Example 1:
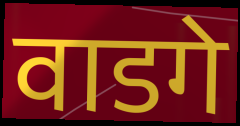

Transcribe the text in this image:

वाडगे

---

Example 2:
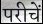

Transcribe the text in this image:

परीचें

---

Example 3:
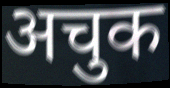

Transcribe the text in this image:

अचुक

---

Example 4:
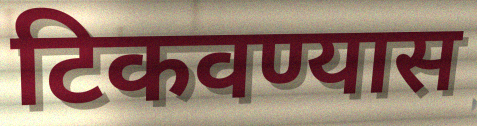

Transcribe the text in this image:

टिकवण्यास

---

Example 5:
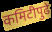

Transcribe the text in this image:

कमिटीपुढे